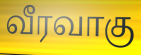
வீரவாகு